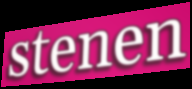
stenen